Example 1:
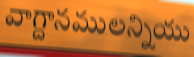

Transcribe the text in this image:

వాగ్దానములన్నియు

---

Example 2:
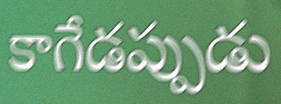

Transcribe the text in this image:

కాగేడప్పుడు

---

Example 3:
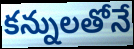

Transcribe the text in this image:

కన్నులతోనే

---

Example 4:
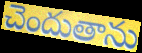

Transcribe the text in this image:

చెందుతాను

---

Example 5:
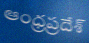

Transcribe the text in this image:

ఆంధ్రప్రదేశ్